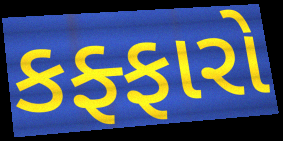
કફ્ફારો